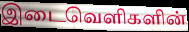
இடைவெளிகளின்